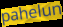
pahelun